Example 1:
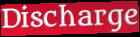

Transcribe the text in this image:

Discharge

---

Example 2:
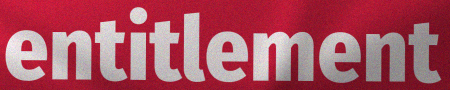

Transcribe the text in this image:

entitlement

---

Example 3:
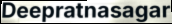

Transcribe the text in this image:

Deepratnasagar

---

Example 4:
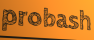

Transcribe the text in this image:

probash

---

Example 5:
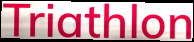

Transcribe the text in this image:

Triathlon